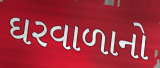
ઘરવાળાનો